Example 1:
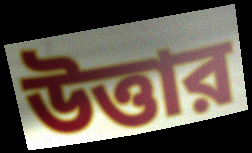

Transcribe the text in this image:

উত্তার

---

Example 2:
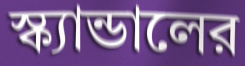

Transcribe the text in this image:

স্ক্যান্ডালের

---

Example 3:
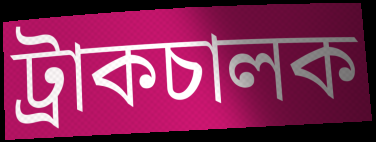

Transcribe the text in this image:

ট্রাকচালক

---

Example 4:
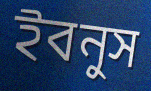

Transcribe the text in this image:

ইবনুস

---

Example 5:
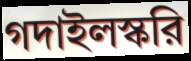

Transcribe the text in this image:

গদাইলস্করি